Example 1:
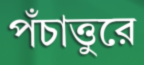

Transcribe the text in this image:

পঁচাত্তুরে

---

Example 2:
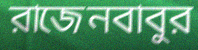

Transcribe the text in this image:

রাজেনবাবুর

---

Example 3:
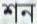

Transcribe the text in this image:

শন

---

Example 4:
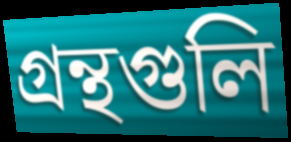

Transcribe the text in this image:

গ্রন্থগুলি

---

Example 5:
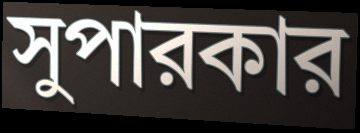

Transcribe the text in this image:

সুপারকার